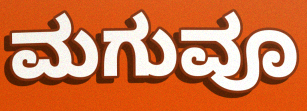
ಮಗುವೂ